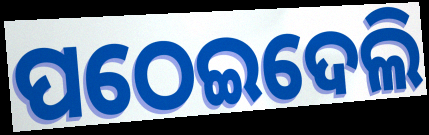
ପଠେଇଦେଲି